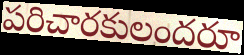
పరిచారకులందరూ